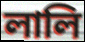
লালি